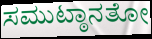
ಸಮುಟ್ಠಾನತೋ